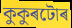
কুকুৰটোৰ